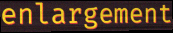
enlargement